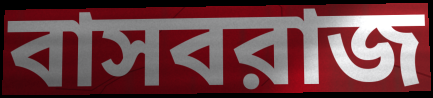
বাসবরাজ